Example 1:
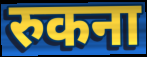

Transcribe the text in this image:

रुकना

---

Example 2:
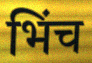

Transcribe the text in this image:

भिंच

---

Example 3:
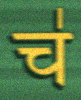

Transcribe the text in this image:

च॑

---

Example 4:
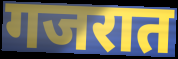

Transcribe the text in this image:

गजरात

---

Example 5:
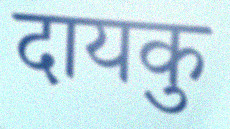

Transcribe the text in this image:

दायकु